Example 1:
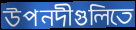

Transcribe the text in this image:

উপনদীগুলিতে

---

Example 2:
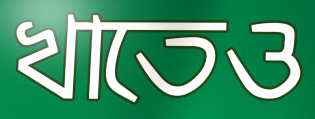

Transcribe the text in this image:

খাতেও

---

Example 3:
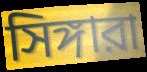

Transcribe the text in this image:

সিঙ্গারা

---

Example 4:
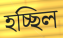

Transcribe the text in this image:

হচ্ছিল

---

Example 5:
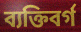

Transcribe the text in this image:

ব্যক্তিবর্গ